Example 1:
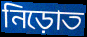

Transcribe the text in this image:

নিড়োত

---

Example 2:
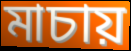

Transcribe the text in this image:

মাচায়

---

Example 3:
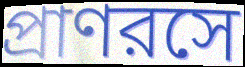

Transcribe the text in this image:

প্রাণরসে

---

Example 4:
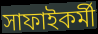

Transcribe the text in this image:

সাফাইকর্মী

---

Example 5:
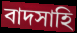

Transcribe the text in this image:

বাদসাহি